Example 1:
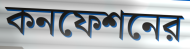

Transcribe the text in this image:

কনফেশনের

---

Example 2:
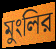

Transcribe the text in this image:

মুংলির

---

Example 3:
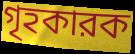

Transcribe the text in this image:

গৃহকারক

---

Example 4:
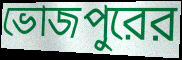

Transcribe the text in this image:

ভোজপুরের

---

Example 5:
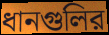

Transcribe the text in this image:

ধানগুলির